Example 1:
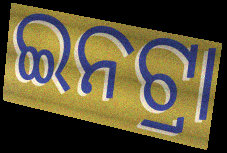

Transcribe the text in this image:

ଇନଟ୍ରା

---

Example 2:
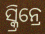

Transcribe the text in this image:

ସ୍କ୍ରିନ୍ରେ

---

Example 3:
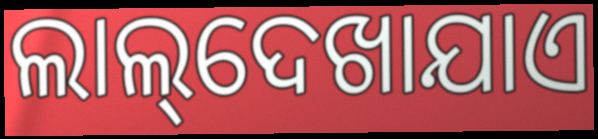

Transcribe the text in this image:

ଲାଲ୍‌ଦେଖାଯାଏ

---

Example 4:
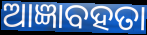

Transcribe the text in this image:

ଆଜ୍ଞାବହତା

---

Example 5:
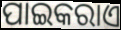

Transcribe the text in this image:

ପାଇକରାଏ